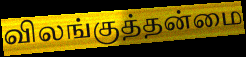
விலங்குத்தன்மை